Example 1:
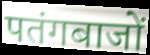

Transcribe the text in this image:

पतंगबाजों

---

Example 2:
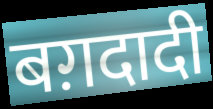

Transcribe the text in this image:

बग़दादी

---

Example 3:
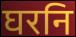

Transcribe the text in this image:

घरनि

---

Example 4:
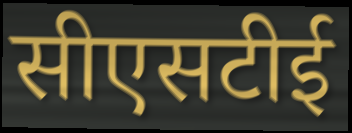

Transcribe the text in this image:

सीएसटीई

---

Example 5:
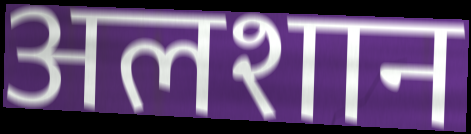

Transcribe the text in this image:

अलशान